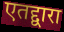
एतद्द्वारा